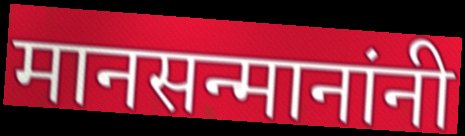
मानसन्मानांनी